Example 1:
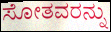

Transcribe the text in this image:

ಸೋತವರನ್ನು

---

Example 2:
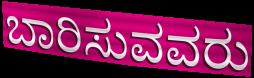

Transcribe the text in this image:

ಬಾರಿಸುವವರು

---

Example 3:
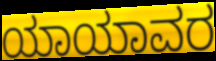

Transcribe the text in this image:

ಯಾಯಾವರ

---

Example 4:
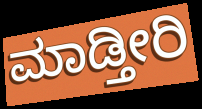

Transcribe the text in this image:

ಮಾಡ್ತೀರಿ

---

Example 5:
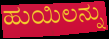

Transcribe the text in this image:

ಹುಯಿಲನ್ನು